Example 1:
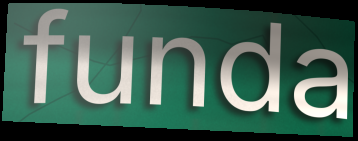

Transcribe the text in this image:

funda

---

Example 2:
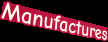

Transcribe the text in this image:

Manufactures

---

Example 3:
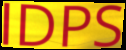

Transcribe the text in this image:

IDPS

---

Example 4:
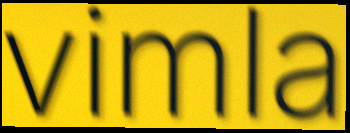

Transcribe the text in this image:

vimla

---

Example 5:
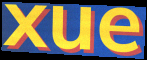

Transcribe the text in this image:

xue